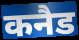
कनैड